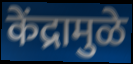
केंद्रामुळे